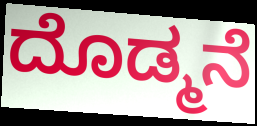
ದೊಡ್ಮನೆ